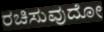
ರಚಿಸುವುದೋ